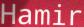
Hamir